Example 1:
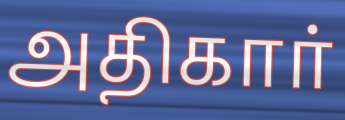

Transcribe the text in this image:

அதிகார்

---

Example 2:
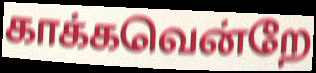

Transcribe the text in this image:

காக்கவென்றே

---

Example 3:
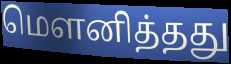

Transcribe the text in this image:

மௌனித்தது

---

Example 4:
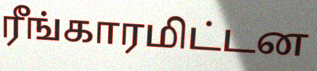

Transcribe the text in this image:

ரீங்காரமிட்டன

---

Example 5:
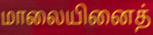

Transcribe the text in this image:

மாலையினைத்